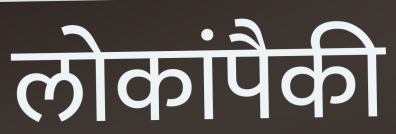
लोकांपैकी